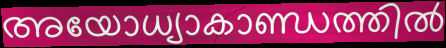
അയോധ്യാകാണ്ഡത്തിൽ